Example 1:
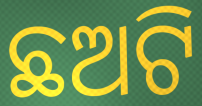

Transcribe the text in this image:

ଛଅଟି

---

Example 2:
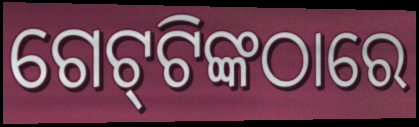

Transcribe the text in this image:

ଗେଟ୍‌ଟିଙ୍କଠାରେ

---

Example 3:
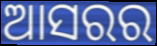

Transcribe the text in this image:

ଆସରର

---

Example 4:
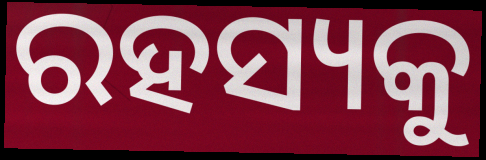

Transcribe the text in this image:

ରହସ୍ୟକୁ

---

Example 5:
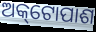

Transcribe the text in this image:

ଅକ୍‌ଟୋପାଶ